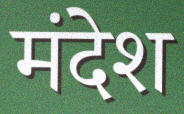
मंदेश